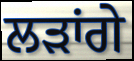
ਲੜਾਂਗੇ